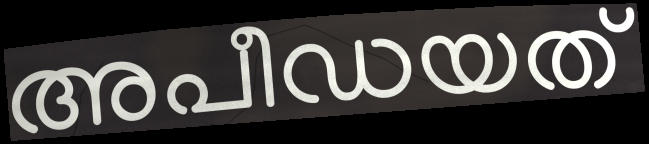
അപീഡയത്